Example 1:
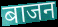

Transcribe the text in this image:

बाजन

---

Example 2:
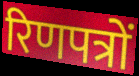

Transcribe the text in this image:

रिणपत्रों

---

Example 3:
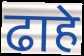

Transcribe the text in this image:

ढाहे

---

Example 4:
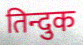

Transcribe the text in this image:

तिन्दुक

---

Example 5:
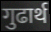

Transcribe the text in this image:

गुढार्थ